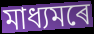
মাধ্যমৰে